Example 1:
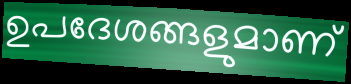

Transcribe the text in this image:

ഉപദേശങ്ങളുമാണ്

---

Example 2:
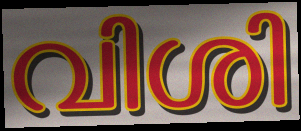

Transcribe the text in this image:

വിശി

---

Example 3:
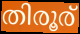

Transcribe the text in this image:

തിരൂര്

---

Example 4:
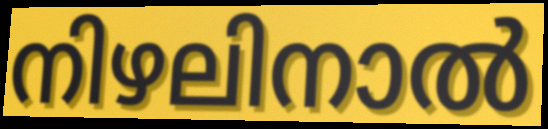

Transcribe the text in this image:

നിഴലിനാൽ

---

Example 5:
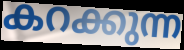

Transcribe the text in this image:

കറക്കുന്ന